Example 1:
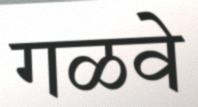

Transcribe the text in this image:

गळवे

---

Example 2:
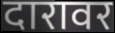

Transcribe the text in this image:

दारावर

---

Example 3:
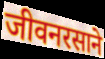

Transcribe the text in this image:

जीवनरसाने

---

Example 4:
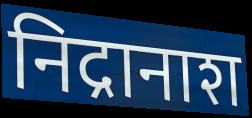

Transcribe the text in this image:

निद्रानाश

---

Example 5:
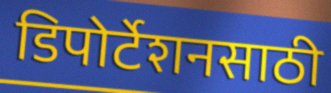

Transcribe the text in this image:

डिपोर्टेशनसाठी